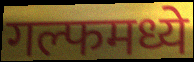
गल्फमध्ये